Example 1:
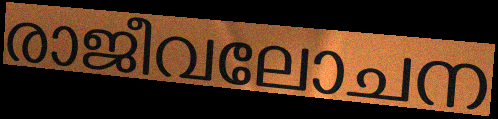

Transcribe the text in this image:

രാജീവലോചന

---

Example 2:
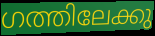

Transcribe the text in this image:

ഗത്തിലേക്കു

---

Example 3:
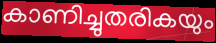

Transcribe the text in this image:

കാണിച്ചുതരികയും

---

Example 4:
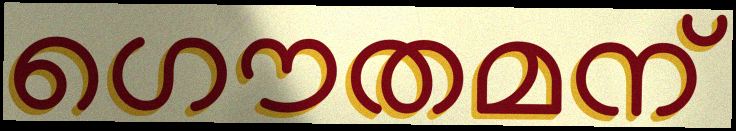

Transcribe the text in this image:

ഗൌതമന്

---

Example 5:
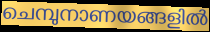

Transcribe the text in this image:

ചെമ്പുനാണയങ്ങളിൽ